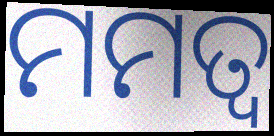
ମମତ୍ୱ